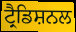
ਟ੍ਰੈਡਿਸ਼ਨਲ